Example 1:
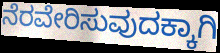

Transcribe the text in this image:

ನೆರವೇರಿಸುವುದಕ್ಕಾಗಿ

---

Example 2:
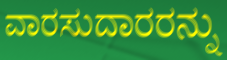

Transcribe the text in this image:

ವಾರಸುದಾರರನ್ನು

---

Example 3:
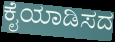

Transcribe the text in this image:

ಕೈಯಾಡಿಸದ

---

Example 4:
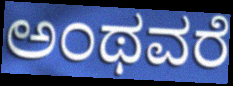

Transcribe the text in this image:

ಅಂಥವರೆ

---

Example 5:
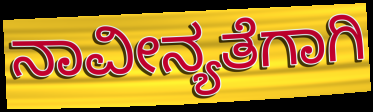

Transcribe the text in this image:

ನಾವೀನ್ಯತೆಗಾಗಿ